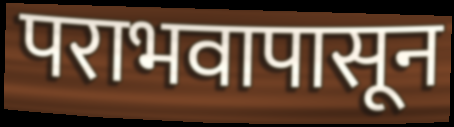
पराभवापासून